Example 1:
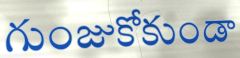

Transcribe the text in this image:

గుంజుకోకుండా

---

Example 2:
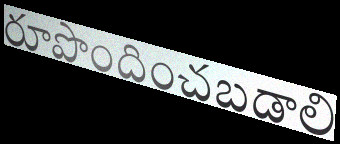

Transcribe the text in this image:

రూపొందించబడాలి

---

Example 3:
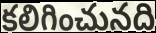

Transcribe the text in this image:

కలిగించునది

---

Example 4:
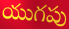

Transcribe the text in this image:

యుగపు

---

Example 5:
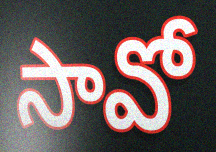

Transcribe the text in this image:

సావో